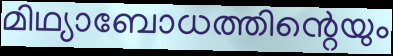
മിഥ്യാബോധത്തിന്റെയും